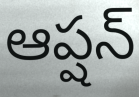
ఆప్షన్